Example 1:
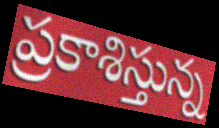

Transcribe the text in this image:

ప్రకాశిస్తున్న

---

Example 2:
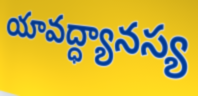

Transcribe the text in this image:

యావద్ధ్యానస్య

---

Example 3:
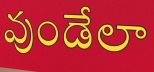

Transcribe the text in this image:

వుండేలా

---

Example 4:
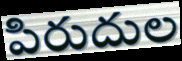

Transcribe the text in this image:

పిరుదుల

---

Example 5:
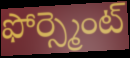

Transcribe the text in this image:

ఫోర్స్మెంట్